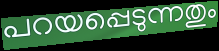
പറയപ്പെടുന്നതും